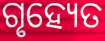
ଗୃହ୍ଯେତ